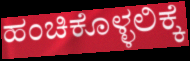
ಹಂಚಿಕೊಳ್ಳಲಿಕ್ಕೆ